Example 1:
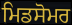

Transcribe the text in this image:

ਮਿਡਸੋਮਰ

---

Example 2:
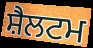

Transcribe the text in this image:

ਸ਼ੈਲਟਮ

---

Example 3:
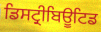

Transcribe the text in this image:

ਡਿਸਟ੍ਰੀਬਿਊਟਿਡ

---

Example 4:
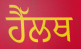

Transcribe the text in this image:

ਹੈੱਲਥ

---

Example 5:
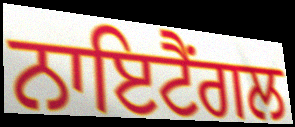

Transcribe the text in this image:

ਨਾਇਟੈਂਗਲ